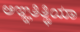
ಅಞ್ಞತಿತ್ಥಿಯಾ